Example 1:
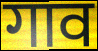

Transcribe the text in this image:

गाव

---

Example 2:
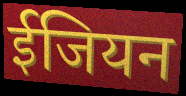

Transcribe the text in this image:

ईजियन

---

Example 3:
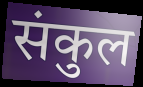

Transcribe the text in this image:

संकुल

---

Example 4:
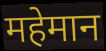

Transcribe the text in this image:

महेमान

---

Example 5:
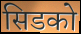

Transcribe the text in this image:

सिडको